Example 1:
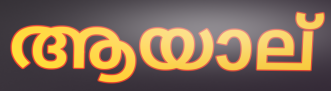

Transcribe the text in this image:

ആയാല്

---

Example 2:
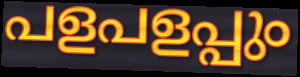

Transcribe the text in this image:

പളപളപ്പും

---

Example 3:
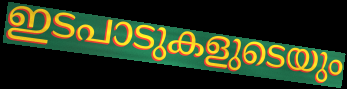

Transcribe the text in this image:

ഇടപാടുകളുടെയും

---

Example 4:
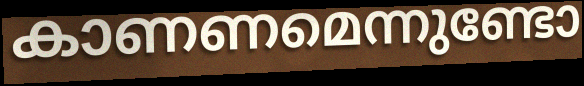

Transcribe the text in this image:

കാണണമെന്നുണ്ടോ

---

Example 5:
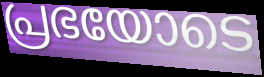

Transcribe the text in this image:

പ്രഭയോടെ